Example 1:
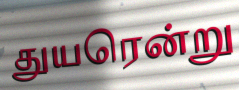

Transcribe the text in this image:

துயரென்று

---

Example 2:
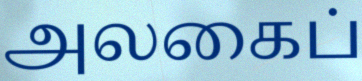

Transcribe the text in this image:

அலகைப்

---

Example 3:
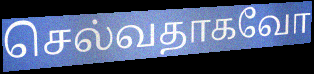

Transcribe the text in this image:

செல்வதாகவோ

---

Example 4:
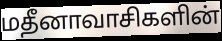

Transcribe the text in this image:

மதீனாவாசிகளின்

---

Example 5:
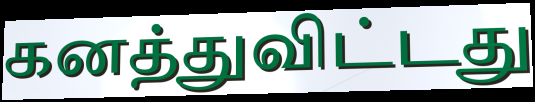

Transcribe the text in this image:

கனத்துவிட்டது